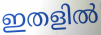
ഇതളിൽ